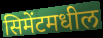
सिमेंटमधील